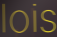
lois